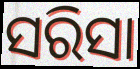
ସରିସା